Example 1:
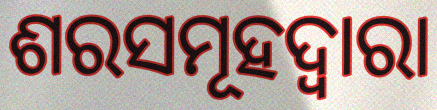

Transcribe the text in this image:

ଶରସମୂହଦ୍ୱାରା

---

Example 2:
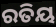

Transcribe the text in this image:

ରତିୟ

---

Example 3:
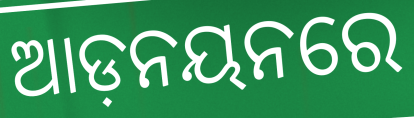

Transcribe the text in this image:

ଆଡ଼ନୟନରେ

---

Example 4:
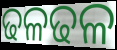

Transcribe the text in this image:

ଢଳଢଳ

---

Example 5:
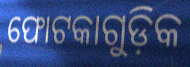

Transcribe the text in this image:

ଫୋଟକାଗୁଡ଼ିକ